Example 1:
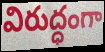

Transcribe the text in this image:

విరుద్ధంగా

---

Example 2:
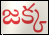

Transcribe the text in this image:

జక్క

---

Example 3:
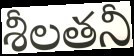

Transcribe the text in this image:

శీలతనీ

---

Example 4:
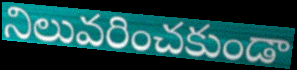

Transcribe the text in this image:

నిలువరించకుండా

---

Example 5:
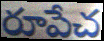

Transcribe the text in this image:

రూపేచ